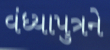
વંધ્યાપુત્રને